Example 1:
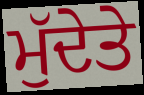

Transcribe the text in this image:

ਮੁੱਦੇਤੇ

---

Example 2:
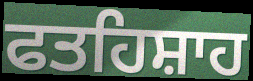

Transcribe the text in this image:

ਫਤਹਿਸ਼ਾਹ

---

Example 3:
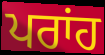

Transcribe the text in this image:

ਪਰਾਂਹ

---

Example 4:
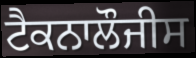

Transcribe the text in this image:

ਟੈਕਨਾਲੌਜੀਸ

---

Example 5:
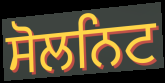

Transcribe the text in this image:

ਸੋਲਨਿਟ